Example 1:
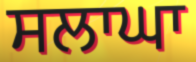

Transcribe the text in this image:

ਸਲਾਘਾ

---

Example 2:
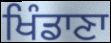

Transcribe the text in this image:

ਖਿੰਡਾਣਾ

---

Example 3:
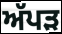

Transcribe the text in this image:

ਅੱਪੜ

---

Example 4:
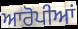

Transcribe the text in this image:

ਆਰੋਪੀਆਂ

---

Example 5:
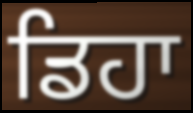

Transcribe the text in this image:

ਡਿਹਾ